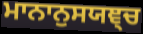
ਮਾਨਾਨੁਸਯਞ੍ਚ